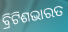
ବ୍ରିଟିଶଭାରତ